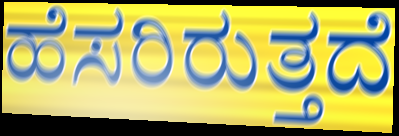
ಹೆಸರಿರುತ್ತದೆ